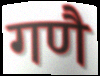
गणै